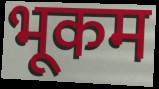
भूकम